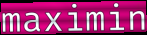
maximin